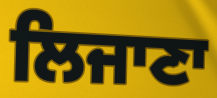
ਲਿਜਾਣਾ